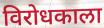
विरोधकाला